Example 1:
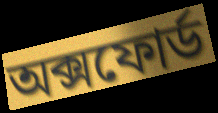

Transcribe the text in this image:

অক্সফোৰ্ড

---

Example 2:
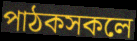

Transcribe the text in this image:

পাঠকসকলে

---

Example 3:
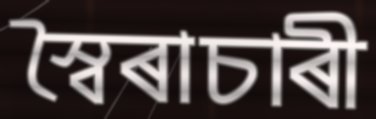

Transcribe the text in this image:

স্বৈৰাচাৰী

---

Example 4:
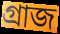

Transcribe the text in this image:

গ্ৰাজ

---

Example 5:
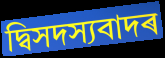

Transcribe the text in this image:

দ্বিসদস্যবাদৰ